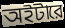
অইটারে